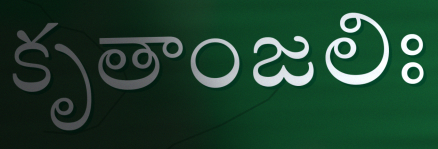
కృతాంజలిః